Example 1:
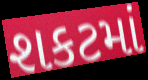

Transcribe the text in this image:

શકટમાં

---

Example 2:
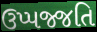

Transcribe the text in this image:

ઉપ્પજ્જતિ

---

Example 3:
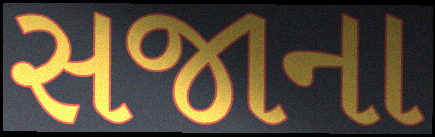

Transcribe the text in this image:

સજાના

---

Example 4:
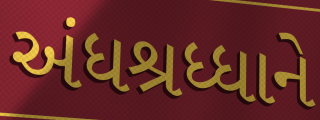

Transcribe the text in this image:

અંધશ્રધ્ધાને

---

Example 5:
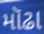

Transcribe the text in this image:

મૉઢા